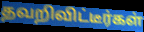
தவறிவிட்டீர்கள்